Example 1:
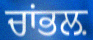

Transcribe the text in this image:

ਚਾਂਭਲ਼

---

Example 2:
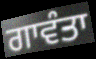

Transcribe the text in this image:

ਗਾਵੰਤਾ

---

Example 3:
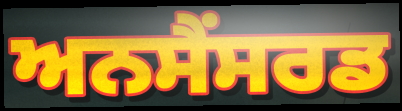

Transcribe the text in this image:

ਅਨਸੈਂਸਰਡ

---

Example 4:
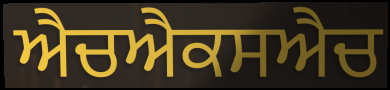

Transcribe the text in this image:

ਐਚਐਕਸਐਚ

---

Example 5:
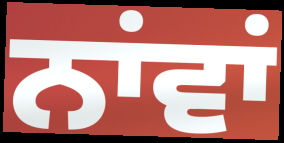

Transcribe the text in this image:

ਨਾਂਵਾਂ